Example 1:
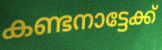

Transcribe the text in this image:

കണ്ടനാട്ടേക്ക്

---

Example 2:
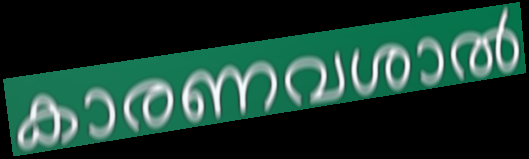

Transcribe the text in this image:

കാരണവശാൽ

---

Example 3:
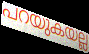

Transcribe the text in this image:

പറയുകയല്ല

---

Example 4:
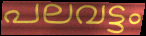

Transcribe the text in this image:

പലവട്ടം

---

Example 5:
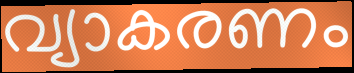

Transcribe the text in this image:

വ്യാകരണം